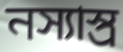
নস্যাস্ত্র